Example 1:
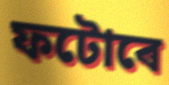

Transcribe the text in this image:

ফটোৰে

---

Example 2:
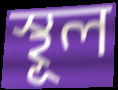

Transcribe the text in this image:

স্থূল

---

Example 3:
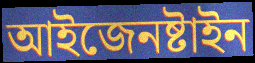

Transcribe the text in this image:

আইজেনষ্টাইন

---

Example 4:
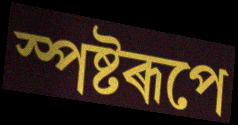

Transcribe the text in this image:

স্পষ্টৰূপে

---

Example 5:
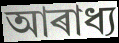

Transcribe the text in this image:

আৰাধ্য